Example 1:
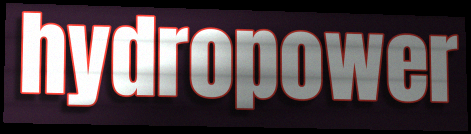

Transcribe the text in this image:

hydropower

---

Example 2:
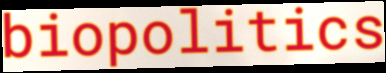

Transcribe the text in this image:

biopolitics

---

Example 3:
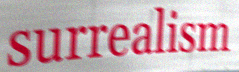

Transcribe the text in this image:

surrealism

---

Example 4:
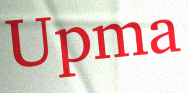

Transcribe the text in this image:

Upma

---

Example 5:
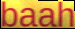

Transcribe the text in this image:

baah